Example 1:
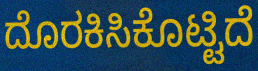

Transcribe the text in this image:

ದೊರಕಿಸಿಕೊಟ್ಟಿದೆ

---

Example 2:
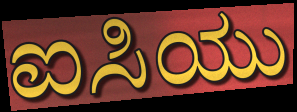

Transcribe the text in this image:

ಐಸಿಯು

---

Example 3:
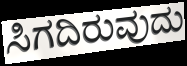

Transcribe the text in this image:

ಸಿಗದಿರುವುದು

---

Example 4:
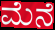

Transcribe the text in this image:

ಮೆನೆ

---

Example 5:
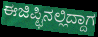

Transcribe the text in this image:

ಈಜಿಪ್ಟಿನಲ್ಲಿದ್ದಾಗ